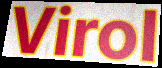
Virol